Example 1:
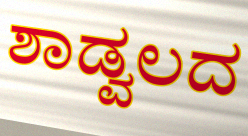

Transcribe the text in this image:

ಶಾಡ್ವಲದ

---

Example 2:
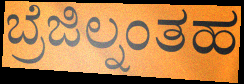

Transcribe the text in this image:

ಬ್ರೆಜಿಲ್ನಂತಹ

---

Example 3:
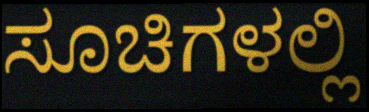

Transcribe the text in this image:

ಸೂಚಿಗಳಲ್ಲಿ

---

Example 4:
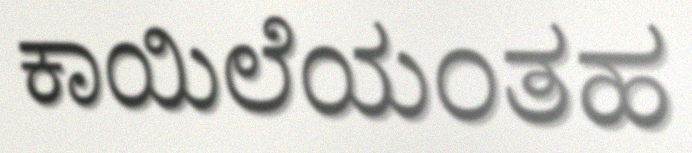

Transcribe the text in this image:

ಕಾಯಿಲೆಯಂತಹ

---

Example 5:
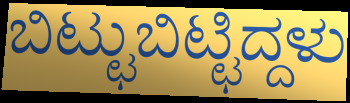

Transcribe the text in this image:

ಬಿಟ್ಟುಬಿಟ್ಟಿದ್ದಳು